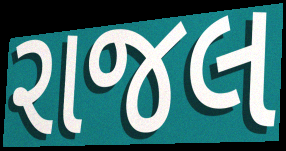
રાજલ